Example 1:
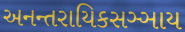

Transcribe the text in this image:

અનન્તરાયિકસઞ્ઞાય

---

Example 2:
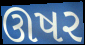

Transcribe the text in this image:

ઊષર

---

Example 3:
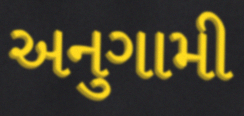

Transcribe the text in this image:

અનુગામી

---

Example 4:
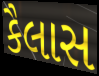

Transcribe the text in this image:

કૈલાસ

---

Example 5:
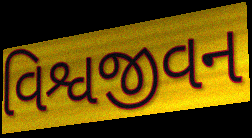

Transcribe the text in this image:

વિશ્વજીવન